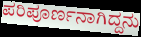
ಪರಿಪೂರ್ಣನಾಗಿದ್ದನು